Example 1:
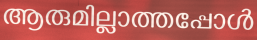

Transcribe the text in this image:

ആരുമില്ലാത്തപ്പോൾ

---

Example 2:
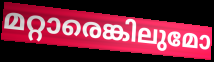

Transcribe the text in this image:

മറ്റാരെങ്കിലുമോ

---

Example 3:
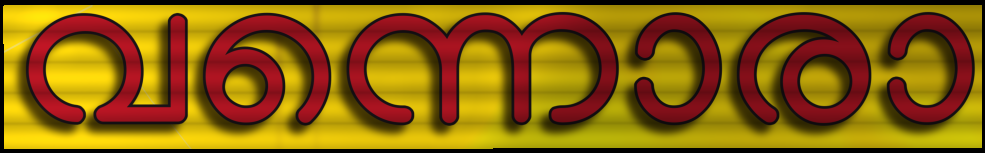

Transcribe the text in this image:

വന്നൊരാ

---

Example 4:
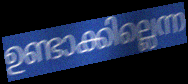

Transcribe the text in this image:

ഉണ്ടാക്കില്ലെന്ന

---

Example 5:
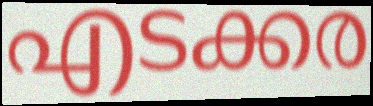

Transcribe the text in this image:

എടക്കര